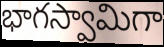
భాగస్వామిగా